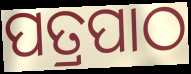
ପତ୍ରପାଠ